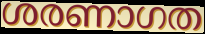
ശരണാഗത